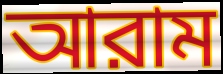
আরাম